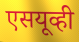
एसयूव्ही